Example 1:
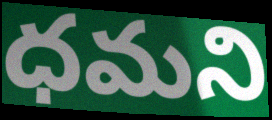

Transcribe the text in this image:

ధమని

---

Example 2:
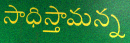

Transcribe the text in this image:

సాధిస్తామన్న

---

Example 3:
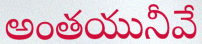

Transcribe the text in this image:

అంతయునీవే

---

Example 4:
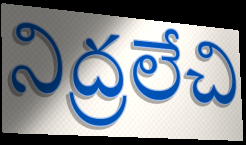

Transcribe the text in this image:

నిద్రలేచి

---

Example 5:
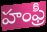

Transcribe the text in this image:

హంఫ్రీ